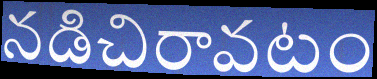
నడిచిరావటం